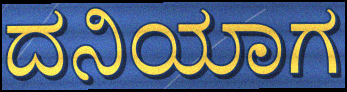
ದನಿಯಾಗ